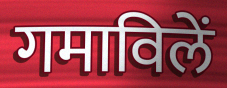
गमाविलें